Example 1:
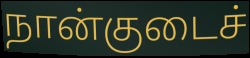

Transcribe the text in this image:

நான்குடைச்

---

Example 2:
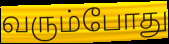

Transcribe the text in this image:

வரும்போது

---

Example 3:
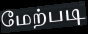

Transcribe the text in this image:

மேற்படி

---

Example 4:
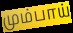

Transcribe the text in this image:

மும்பாய்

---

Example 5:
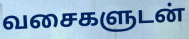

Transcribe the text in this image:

வசைகளுடன்